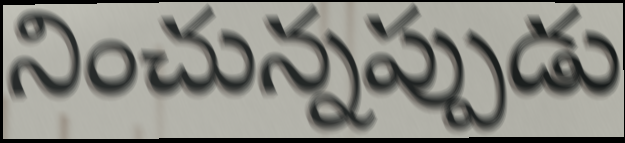
నించున్నప్పుడు